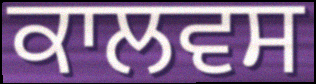
ਕਾਲਵਸ